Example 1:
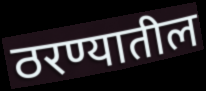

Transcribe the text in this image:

ठरण्यातील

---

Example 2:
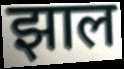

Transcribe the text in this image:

झाल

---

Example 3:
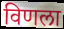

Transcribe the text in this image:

विणला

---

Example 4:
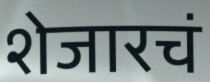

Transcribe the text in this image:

शेजारचं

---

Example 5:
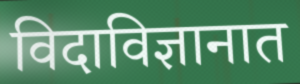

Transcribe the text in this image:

विदाविज्ञानात